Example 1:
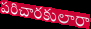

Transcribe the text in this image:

పరిచారకులారా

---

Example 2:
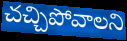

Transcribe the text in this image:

చచ్చిపోవాలని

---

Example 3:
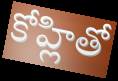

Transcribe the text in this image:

కోహ్లితో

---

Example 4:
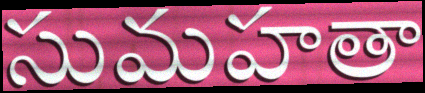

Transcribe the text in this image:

సుమహతా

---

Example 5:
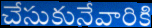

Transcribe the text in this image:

చేసుకునేవారికి